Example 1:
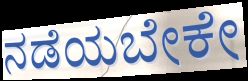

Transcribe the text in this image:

ನಡೆಯಬೇಕೇ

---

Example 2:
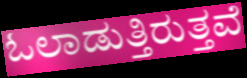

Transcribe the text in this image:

ಓಲಾಡುತ್ತಿರುತ್ತವೆ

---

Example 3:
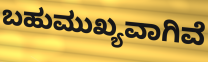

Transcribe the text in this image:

ಬಹುಮುಖ್ಯವಾಗಿವೆ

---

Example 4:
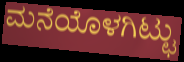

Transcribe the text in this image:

ಮನೆಯೊಳಗಿಟ್ಟು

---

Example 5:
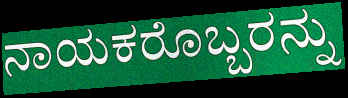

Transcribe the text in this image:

ನಾಯಕರೊಬ್ಬರನ್ನು